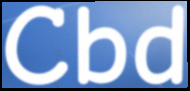
Cbd